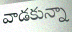
వాడకున్నా